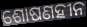
ଶୋଷଣହୀନ